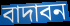
বাদাবন